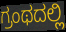
ಗ್ರಂಥದಲ್ಲಿ